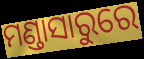
ମଣ୍ଡାସାରୁରେ